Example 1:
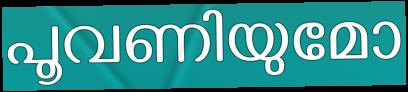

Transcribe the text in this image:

പൂവണിയുമോ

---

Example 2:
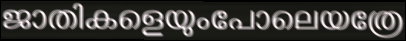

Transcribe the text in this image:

ജാതികളെയുംപോലെയത്രേ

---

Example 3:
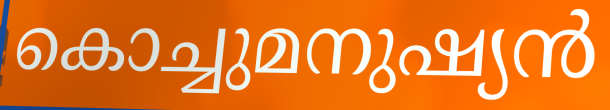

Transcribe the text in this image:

കൊച്ചുമനുഷ്യൻ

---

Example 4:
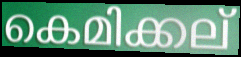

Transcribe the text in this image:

കെമിക്കല്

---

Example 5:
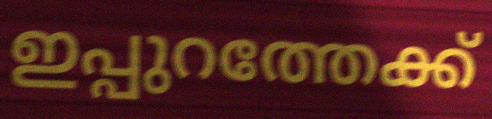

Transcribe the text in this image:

ഇപ്പുറത്തേക്ക്